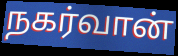
நகர்வான்